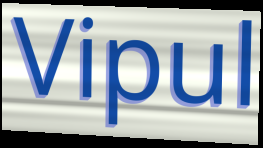
Vipul